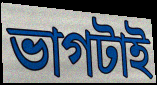
ভাগটাই